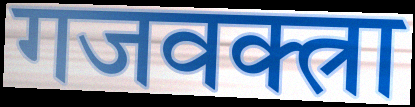
गजवक्त्रा